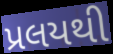
પ્રલયથી